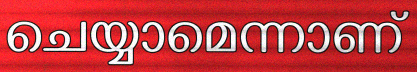
ചെയ്യാമെന്നാണ്